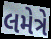
લમેત્રે